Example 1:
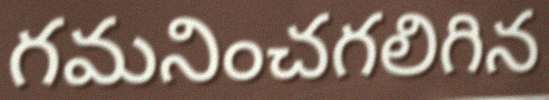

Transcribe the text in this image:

గమనించగలిగిన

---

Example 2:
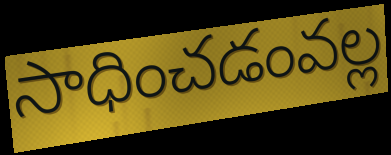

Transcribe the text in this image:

సాధించడంవల్ల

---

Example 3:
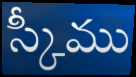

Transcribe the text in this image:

స్కీము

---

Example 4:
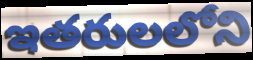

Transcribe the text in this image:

ఇతరులలోని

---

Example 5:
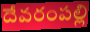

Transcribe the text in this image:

దేవరంపల్లి